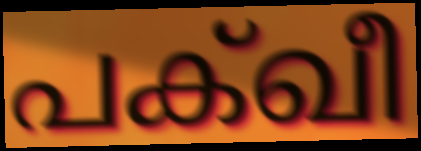
പക്ഖീ